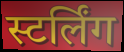
स्‍टर्लिंग